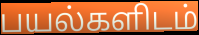
பயல்களிடம்